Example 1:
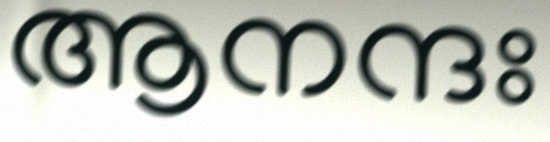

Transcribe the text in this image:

ആനന്ദഃ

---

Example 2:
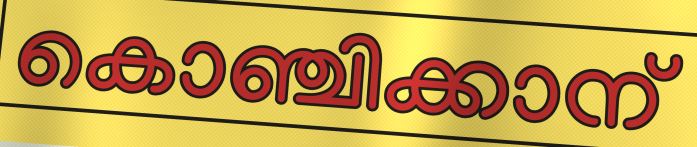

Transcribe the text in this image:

കൊഞ്ചിക്കാന്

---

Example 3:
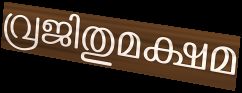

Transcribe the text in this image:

വ്രജിതുമക്ഷമ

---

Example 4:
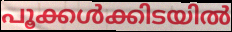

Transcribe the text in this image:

പൂക്കൾക്കിടയിൽ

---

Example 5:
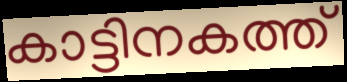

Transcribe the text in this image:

കാട്ടിനകത്ത്